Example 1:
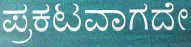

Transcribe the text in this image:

ಪ್ರಕಟವಾಗದೇ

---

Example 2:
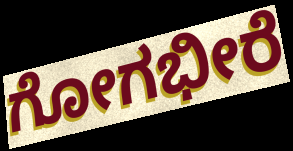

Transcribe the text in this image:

ಗೋಗಭೀರೆ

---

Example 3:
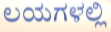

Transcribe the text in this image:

ಲಯಗಳಲ್ಲಿ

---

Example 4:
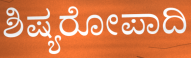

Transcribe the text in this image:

ಶಿಷ್ಯರೋಪಾದಿ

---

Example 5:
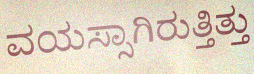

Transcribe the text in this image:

ವಯಸ್ಸಾಗಿರುತ್ತಿತ್ತು